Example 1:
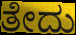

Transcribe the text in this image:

ತೇದು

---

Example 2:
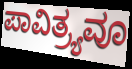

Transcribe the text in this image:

ಪಾವಿತ್ರ್ಯವೂ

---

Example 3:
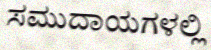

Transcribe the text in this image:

ಸಮುದಾಯಗಳಲ್ಲಿ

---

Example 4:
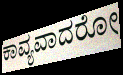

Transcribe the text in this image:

ಕಾವ್ಯವಾದರೋ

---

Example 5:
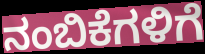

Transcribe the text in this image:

ನಂಬಿಕೆಗಳಿಗೆ